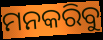
ମନକରିବୁ